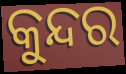
କୁନ୍ଦର